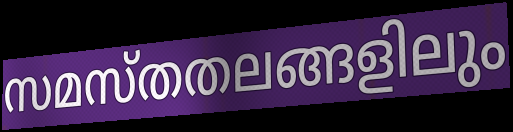
സമസ്തതലങ്ങളിലും